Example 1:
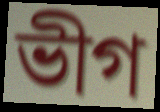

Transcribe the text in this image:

ভীগ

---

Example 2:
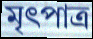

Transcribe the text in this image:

মৃৎপাত্র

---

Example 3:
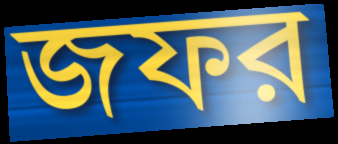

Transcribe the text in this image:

জফর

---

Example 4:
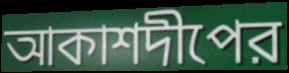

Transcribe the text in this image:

আকাশদীপের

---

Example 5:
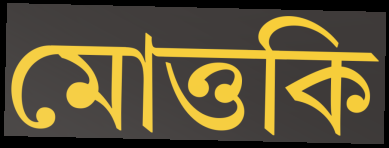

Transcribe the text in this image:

মোত্তকি